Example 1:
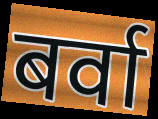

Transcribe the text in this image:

बर्वा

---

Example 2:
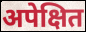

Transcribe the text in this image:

अपेक्षित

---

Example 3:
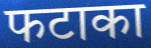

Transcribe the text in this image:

फटाका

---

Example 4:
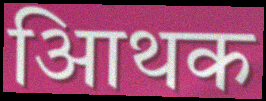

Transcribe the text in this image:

आिथक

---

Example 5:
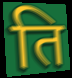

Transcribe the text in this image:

ति